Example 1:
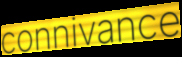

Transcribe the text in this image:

connivance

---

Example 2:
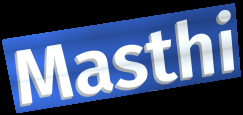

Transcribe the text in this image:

Masthi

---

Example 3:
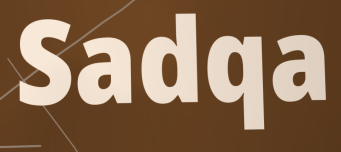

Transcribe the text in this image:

Sadqa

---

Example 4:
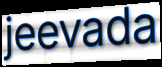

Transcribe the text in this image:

jeevada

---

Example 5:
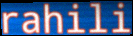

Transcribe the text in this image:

rahili